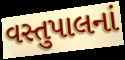
વસ્તુપાલનાં